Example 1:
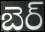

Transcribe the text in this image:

బెర్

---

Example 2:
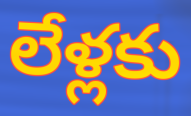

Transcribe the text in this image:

లేళ్లకు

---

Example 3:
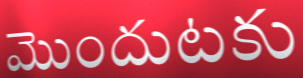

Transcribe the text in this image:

మొందుటకు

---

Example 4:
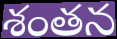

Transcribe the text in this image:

శంతన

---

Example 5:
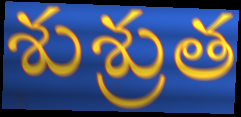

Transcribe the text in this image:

శుశ్రుత